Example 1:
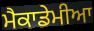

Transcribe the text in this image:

ਮੈਕਾਡੇਮੀਆ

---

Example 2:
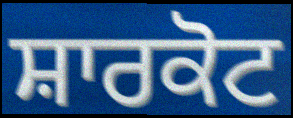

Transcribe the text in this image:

ਸ਼ਾਰਕੋਟ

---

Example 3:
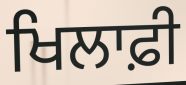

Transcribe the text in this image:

ਖਿਲਾਫ਼ੀ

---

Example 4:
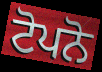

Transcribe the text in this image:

ਟੋਪਨੋ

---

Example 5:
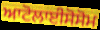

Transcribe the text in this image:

ਆਟੋਲਾਈਸੋਸੋਮ